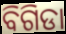
ବିଗିଡା